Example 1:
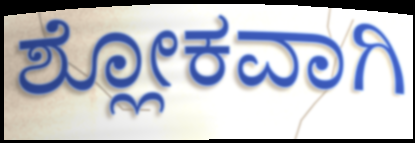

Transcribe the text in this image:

ಶ್ಲೋಕವಾಗಿ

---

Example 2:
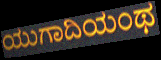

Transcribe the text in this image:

ಯುಗಾದಿಯಂಥ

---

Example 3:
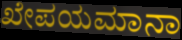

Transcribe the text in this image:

ಖೇಪಯಮಾನಾ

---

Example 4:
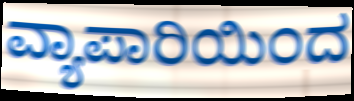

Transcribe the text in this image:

ವ್ಯಾಪಾರಿಯಿಂದ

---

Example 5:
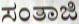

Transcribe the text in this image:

ಸಂತಾಜಿ